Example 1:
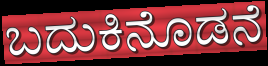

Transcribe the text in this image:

ಬದುಕಿನೊಡನೆ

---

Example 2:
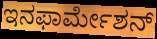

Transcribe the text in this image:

ಇನಫಾರ್ಮೇಶನ್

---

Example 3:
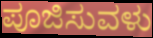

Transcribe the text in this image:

ಪೂಜಿಸುವಳು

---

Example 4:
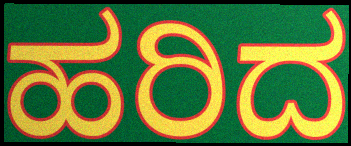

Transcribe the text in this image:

ಹರಿದ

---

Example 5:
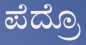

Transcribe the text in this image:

ಪೆದ್ರೊ